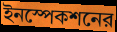
ইনস্পেকশনের